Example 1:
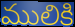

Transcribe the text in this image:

ములికి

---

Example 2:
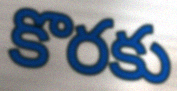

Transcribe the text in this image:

కొరకు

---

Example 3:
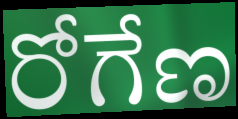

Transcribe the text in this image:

రోగేణ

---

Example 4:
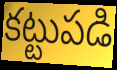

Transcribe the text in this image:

కట్టుపడి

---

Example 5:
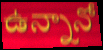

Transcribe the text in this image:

ఉన్నానో